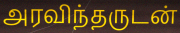
அரவிந்தருடன்